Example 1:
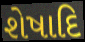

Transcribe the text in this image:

શેષાદિ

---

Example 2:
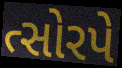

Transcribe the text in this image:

ત્સોરપે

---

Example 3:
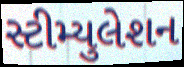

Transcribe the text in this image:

સ્ટીમ્યુલેશન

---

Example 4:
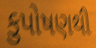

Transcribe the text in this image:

કુપોષણથી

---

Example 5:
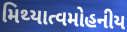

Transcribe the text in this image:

મિથ્યાત્વમોહનીય